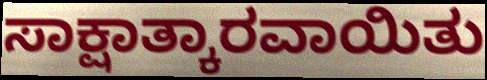
ಸಾಕ್ಷಾತ್ಕಾರವಾಯಿತು